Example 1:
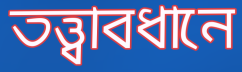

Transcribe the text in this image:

তত্ত্বাবধানে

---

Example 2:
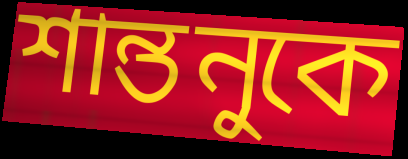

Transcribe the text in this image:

শান্তনুকে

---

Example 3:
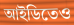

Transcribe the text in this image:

আইডিতেও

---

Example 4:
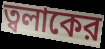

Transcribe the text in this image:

ত্বলাকের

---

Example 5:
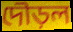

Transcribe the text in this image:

দৌড়ল